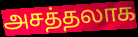
அசத்தலாக